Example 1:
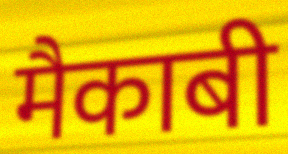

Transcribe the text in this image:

मैकाबी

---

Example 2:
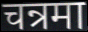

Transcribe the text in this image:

चन्रमा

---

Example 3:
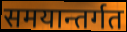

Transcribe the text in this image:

समयान्तर्गत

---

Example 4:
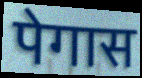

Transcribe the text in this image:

पेगास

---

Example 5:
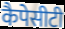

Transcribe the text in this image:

कैपेसीटी